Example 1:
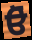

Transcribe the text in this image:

ਓੋ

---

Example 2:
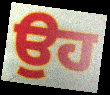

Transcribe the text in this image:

ਉਹ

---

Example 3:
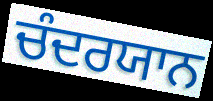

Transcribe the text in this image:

ਚੰਦਰਯਾਨ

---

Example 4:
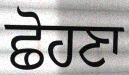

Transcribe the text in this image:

ਛੋਹਣਾ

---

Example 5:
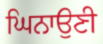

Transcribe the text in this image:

ਘਿਨਾਉਣੀ